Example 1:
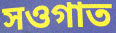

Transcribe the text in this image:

সওগাত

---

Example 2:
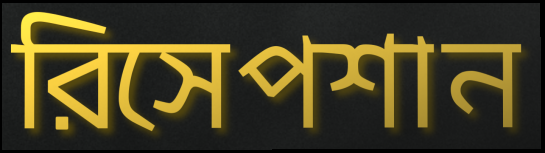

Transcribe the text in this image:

রিসেপশান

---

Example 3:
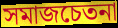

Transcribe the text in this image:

সমাজচেতনা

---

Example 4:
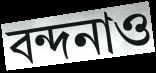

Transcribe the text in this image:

বন্দনাও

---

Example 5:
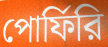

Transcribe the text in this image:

পোর্ফিরি